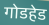
गोडहेड